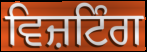
ਵਿਜ਼ਟਿੰਗ